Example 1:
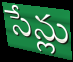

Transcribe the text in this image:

సేన్లు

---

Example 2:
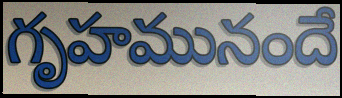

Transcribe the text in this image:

గృహమునందే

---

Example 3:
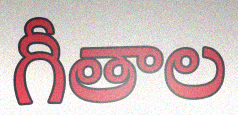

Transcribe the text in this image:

గీతాల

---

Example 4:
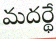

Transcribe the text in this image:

మదర్థే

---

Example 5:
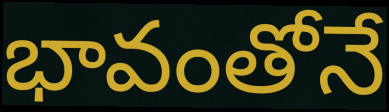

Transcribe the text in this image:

భావంతోనే